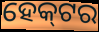
ହେକ୍‌ଟର